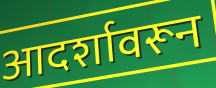
आदर्शावरून